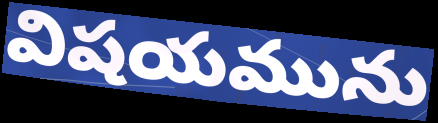
విషయమును